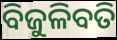
ବିଜୁଳିବତି